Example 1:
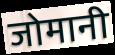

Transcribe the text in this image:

जोमानी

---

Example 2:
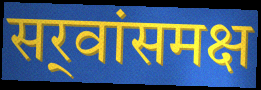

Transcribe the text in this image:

सर्वांसमक्ष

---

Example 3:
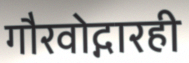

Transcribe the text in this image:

गौरवोद्गारही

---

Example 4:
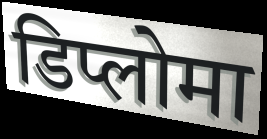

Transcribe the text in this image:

डिप्लोमा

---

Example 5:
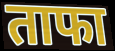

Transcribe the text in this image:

ताफा